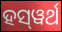
ହସ୍‌ୱର୍ଥ